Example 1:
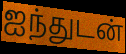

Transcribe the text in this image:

ஐந்துடன்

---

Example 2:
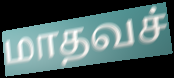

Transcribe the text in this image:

மாதவச்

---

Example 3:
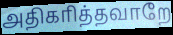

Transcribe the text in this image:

அதிகரித்தவாறே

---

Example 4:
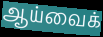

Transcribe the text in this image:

ஆய்வைக்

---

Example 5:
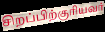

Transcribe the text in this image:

சிறப்பிற்குரியவர்